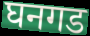
घनगड